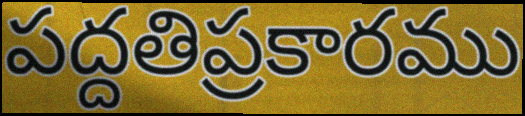
పద్దతిప్రకారము